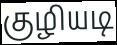
குழியடி